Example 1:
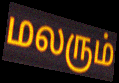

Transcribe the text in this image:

மலரும்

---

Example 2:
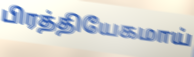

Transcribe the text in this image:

பிரத்தியேகமாய்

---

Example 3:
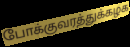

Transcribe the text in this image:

போக்குவரத்துக்கழக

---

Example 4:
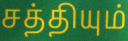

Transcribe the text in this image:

சத்தியும்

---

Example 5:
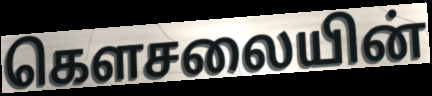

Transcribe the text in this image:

கௌசலையின்